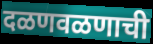
दळणवळणाची